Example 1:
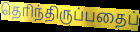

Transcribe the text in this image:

தெரிந்திருப்பதைப்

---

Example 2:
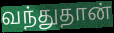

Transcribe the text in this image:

வந்துதான்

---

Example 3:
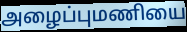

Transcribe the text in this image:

அழைப்புமணியை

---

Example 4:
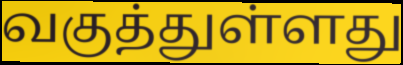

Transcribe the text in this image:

வகுத்துள்ளது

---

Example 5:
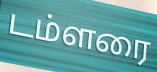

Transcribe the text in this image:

டம்ளரை